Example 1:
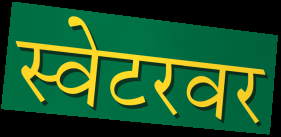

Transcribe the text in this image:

स्वेटरवर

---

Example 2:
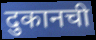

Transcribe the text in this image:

दुकानची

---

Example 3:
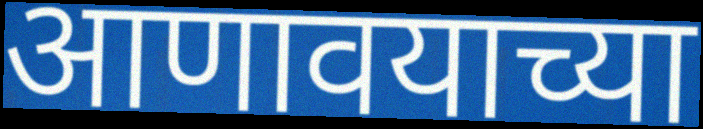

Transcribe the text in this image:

आणावयाच्या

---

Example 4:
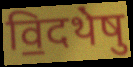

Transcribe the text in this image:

वि॒दथे॑षु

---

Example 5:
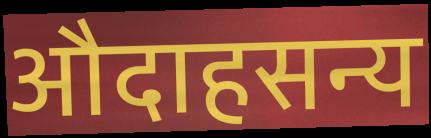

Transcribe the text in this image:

औदाहसन्य